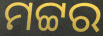
ମଟ୍ଟର